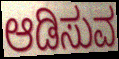
ಆಡಿಸುವ